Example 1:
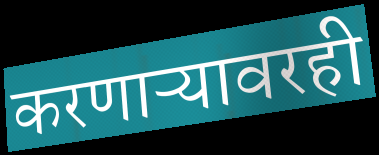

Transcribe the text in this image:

करणाऱ्यावरही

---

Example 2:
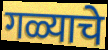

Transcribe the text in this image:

गळ्याचे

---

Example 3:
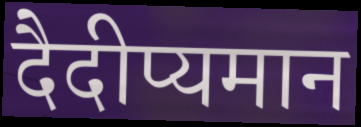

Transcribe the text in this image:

दैदीप्यमान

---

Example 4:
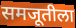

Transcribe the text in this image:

समजूतीला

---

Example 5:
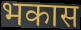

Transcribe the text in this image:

भकास